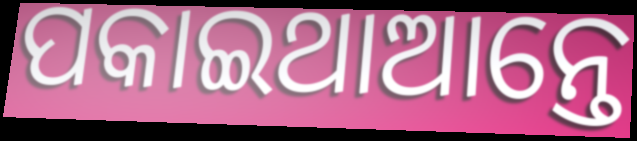
ପକାଇଥାଆନ୍ତେ